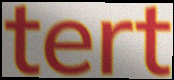
tert